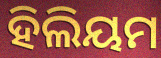
ହିଲିୟମ